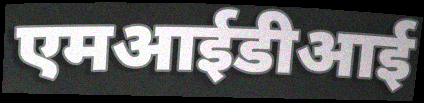
एमआईडीआई